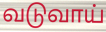
வடுவாய்